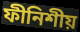
ফীনিশীয়